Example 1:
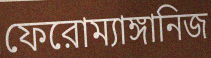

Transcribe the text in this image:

ফেরোম্যাঙ্গানিজ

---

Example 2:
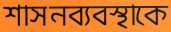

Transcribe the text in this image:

শাসনব্যবস্থাকে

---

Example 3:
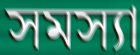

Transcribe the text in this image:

সমস্যা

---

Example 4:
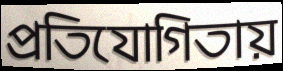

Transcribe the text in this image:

প্রতিযোগিতায়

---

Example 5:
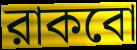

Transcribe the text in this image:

রাকবো